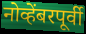
नोव्हेंबरपूर्वी